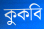
কুকবি